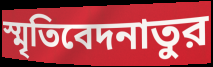
স্মৃতিবেদনাতুর